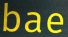
bae